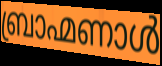
ബ്രാഹ്മണാൾ